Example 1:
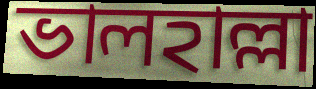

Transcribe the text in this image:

ভালহাল্লা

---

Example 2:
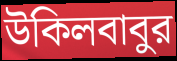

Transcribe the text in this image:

উকিলবাবুর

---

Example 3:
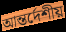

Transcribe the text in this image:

আন্তর্দেশীয়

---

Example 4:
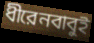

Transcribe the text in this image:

ধীরেনবাবুই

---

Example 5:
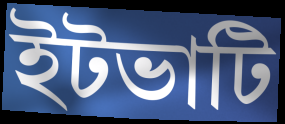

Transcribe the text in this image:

ইটভাটি